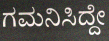
ಗಮನಿಸಿದ್ದೇ